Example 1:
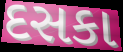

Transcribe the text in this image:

દસકા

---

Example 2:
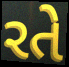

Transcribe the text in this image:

રતે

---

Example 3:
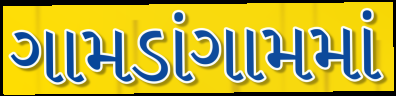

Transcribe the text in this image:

ગામડાંગામમાં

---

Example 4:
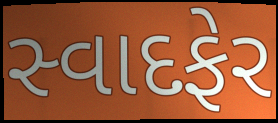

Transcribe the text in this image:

સ્વાદફેર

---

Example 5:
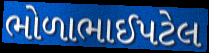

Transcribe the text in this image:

ભોળાભાઈપટેલ